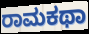
ರಾಮಕಥಾ